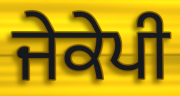
ਜੇਕੇਪੀ